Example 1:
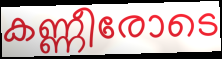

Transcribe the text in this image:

കണ്ണീരോടെ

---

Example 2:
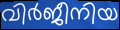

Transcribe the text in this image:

വിർജീനിയ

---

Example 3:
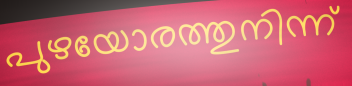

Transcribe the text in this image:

പുഴയോരത്തുനിന്ന്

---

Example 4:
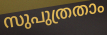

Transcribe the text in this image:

സുപുത്രതാം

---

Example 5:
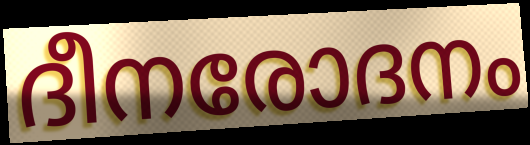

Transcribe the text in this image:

ദീനരോദനം